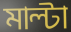
মাল্টা